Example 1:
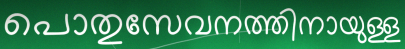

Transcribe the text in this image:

പൊതുസേവനത്തിനായുള്ള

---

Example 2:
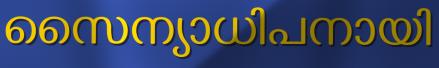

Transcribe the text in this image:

സൈന്യാധിപനായി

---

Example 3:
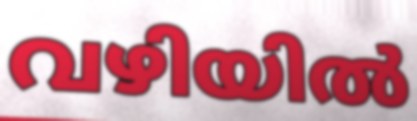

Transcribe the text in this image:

വഴിയിൽ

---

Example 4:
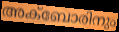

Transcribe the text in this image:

അക്ബോരിനും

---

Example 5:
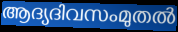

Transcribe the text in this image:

ആദ്യദിവസംമുതൽ